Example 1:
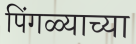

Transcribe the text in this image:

पिंगळ्याच्या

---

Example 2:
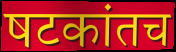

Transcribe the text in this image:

षटकांतच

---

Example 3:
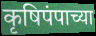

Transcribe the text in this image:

कृषिपंपाच्या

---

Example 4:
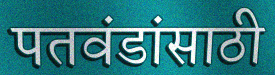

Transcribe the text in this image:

पतवंडांसाठी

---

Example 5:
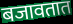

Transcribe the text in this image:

बजावतात